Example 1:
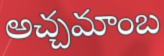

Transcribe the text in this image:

అచ్చమాంబ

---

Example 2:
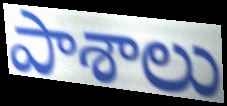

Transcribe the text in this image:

పాశాలు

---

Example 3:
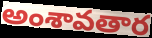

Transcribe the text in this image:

అంశావతార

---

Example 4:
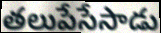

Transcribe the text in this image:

తలుపేసేసాడు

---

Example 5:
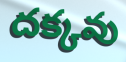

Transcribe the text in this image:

దక్కవు